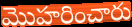
మొహరించారు